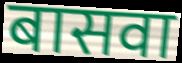
बासवा